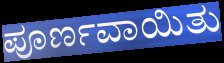
ಪೂರ್ಣವಾಯಿತು